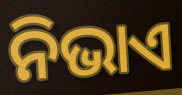
ନିଭାଏ